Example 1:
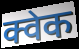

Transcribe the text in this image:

क्वेक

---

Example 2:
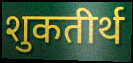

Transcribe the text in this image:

शुकतीर्थ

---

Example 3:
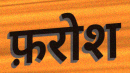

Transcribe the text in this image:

फ़रोश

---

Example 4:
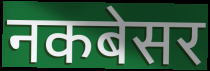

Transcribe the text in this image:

नकबेसर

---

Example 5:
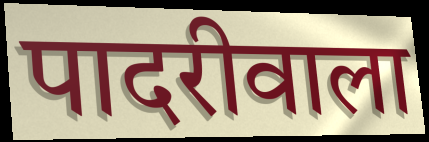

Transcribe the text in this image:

पादरीवाला